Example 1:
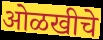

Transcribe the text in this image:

ओळखीचे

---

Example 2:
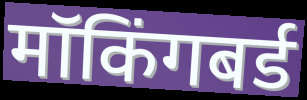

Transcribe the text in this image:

मॉकिंगबर्ड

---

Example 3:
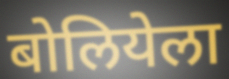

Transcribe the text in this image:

बोलियेला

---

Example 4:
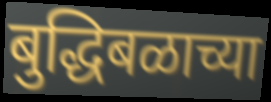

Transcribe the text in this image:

बुद्धिबळाच्या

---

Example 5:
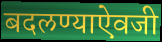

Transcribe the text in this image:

बदलण्याऐवजी